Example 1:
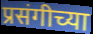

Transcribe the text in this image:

प्रसंगीच्या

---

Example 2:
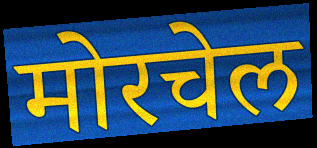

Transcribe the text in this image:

मोरचेल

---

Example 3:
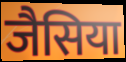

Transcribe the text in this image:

जैसिया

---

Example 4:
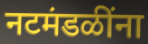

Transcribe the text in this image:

नटमंडळींना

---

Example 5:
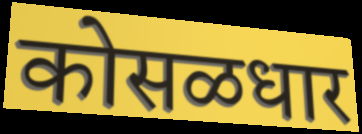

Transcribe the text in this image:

कोसळधार